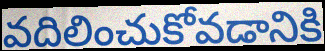
వదిలించుకోవడానికి